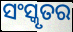
ସଂସ୍କୃତର